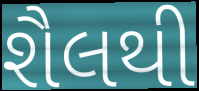
શૈલથી